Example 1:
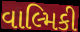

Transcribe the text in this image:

વાલ્મિકી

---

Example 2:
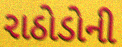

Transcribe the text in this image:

રાઠોડોની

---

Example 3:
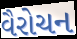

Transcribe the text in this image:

વૈરોચન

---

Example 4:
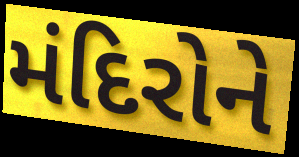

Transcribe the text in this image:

મંદિરોને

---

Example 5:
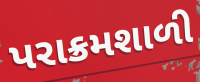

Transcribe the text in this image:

પરાક્રમશાળી